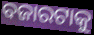
ବଜାରଟାକୁ